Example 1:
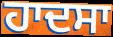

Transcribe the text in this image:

ਹਾਦਸਾ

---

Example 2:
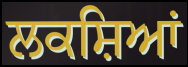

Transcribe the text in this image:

ਲਕਸ਼ਿਆਂ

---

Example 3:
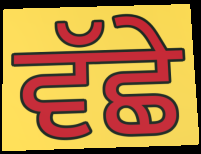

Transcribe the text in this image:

ਵੱਛੇ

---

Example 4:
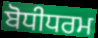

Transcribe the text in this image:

ਬੋਧੀਧਰਮ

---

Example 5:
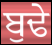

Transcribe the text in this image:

ਬੁਢੇ